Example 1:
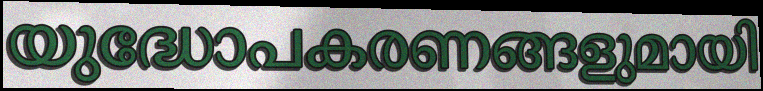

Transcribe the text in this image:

യുദ്ധോപകരണങ്ങളുമായി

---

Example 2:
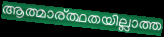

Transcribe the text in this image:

ആത്മാര്ത്ഥതയില്ലാത്ത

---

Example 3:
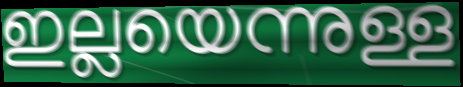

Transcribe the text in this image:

ഇല്ലയെന്നുള്ള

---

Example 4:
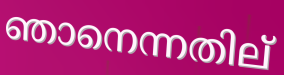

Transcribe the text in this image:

ഞാനെന്നതില്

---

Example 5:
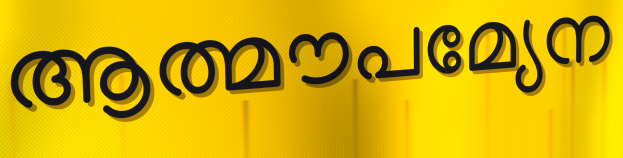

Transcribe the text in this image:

ആത്മൗപമ്യേന